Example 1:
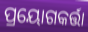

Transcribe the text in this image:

ପ୍ରୟୋଗକର୍ତ୍ତା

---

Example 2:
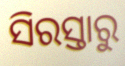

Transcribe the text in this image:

ସିରସ୍ତାରୁ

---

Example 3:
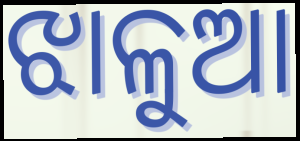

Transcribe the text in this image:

ଝାଳୁଆ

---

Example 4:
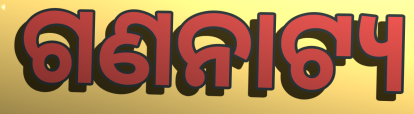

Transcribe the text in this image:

ଗଣନାଟ୍ୟ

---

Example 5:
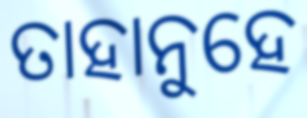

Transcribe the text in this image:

ତାହାନୁହେ